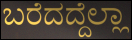
ಬರೆದದ್ದೆಲ್ಲಾ